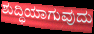
ಶುದ್ಧಿಯಾಗುವುದು